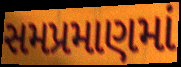
સમપ્રમાણમાં